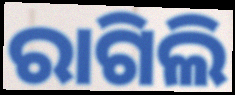
ରାଗିଲି